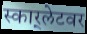
स्कार्लेटवर